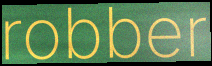
robber